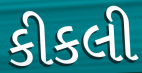
કીકલી